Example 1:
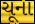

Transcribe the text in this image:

ચૂના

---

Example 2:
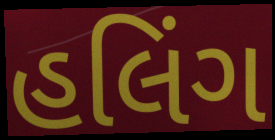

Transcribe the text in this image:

હલિંગ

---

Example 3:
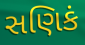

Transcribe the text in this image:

સણિકં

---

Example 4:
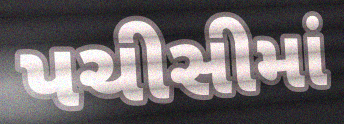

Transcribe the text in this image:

પચીસીમાં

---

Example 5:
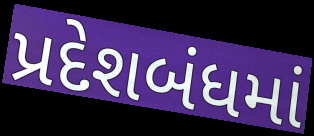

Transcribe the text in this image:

પ્રદેશબંધમાં